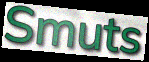
Smuts